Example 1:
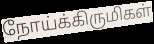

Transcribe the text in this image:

நோய்க்கிருமிகள்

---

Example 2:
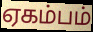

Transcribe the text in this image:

ஏகம்பம்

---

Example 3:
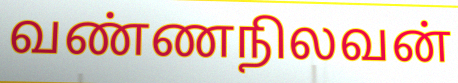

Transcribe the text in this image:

வண்ணநிலவன்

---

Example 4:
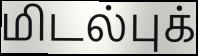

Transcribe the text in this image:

மிடல்புக்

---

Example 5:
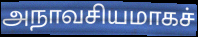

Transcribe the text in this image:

அநாவசியமாகச்